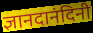
ज्ञानदानंदिनी